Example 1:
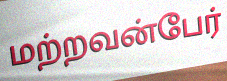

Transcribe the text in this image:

மற்றவன்பேர்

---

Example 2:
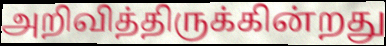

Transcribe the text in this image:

அறிவித்திருக்கின்றது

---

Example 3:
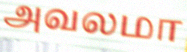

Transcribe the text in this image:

அவலமா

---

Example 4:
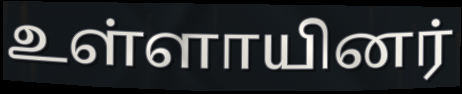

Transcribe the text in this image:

உள்ளாயினர்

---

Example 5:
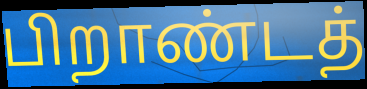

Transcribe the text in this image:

பிறாண்டத்